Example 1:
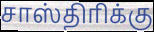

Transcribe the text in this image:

சாஸ்திரிக்கு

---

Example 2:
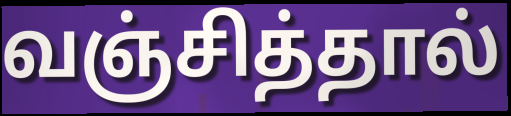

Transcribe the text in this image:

வஞ்சித்தால்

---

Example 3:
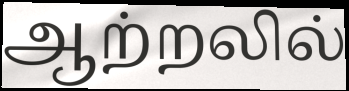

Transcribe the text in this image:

ஆற்றலில்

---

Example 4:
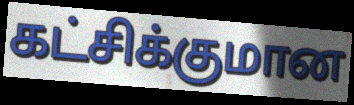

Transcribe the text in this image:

கட்சிக்குமான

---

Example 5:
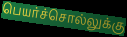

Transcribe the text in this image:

பெயர்ச்சொல்லுக்கு